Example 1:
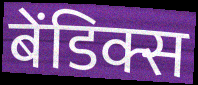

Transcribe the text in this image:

बेंडिक्स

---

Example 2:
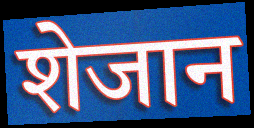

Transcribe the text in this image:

शेजान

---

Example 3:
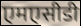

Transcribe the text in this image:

एमएसीडी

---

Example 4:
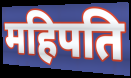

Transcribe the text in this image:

महिपति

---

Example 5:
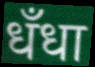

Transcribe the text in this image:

धँधा